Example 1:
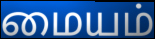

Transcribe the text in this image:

மையம்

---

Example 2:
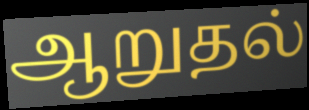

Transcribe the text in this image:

ஆறுதல்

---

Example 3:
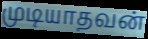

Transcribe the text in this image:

முடியாதவன்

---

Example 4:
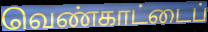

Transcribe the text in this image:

வெண்காட்டைப்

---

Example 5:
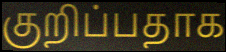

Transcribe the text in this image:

குறிப்பதாக